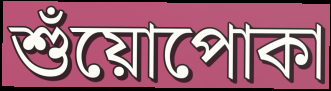
শুঁয়োপোকা